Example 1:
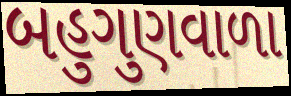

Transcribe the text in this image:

બહુગુણવાળા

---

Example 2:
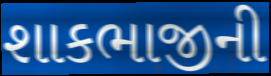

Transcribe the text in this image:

શાકભાજીની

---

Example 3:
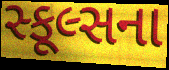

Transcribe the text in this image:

સ્કૂલ્સના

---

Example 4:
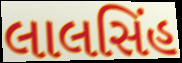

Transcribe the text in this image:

લાલસિંહ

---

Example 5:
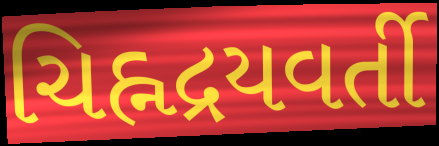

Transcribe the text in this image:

ચિહ્નદ્રયવર્તી